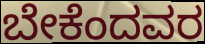
ಬೇಕೆಂದವರ